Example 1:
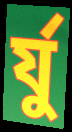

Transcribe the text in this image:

র্যু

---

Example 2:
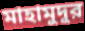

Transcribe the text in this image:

মাহামুদুর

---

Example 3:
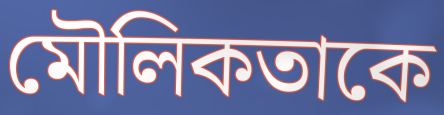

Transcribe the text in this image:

মৌলিকতাকে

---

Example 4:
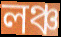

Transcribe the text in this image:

লঞ্চ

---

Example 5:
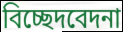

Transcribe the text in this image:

বিচ্ছেদবেদনা